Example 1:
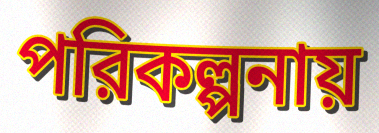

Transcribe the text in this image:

পরিকল্পনায়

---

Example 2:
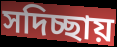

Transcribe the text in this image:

সদিচ্ছায়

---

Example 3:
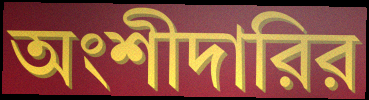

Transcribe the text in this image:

অংশীদারির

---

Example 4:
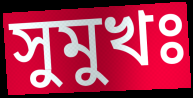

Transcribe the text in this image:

সুমুখঃ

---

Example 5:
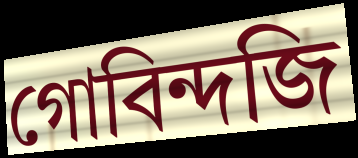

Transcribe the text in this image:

গোবিন্দজি